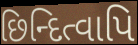
છિન્દિત્વાપિ